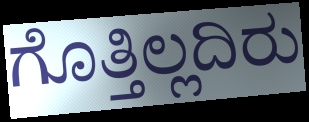
ಗೊತ್ತಿಲ್ಲದಿರು